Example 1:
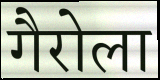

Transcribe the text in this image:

गैरोला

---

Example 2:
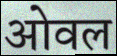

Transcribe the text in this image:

ओवल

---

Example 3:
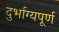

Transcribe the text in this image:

दुर्भाग्यपूर्ण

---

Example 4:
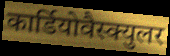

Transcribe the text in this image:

कार्डियोवैस्क्युलर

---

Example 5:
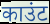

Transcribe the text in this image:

काउंट